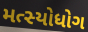
મત્સ્યોધોગ